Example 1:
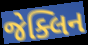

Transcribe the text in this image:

જેક્લિન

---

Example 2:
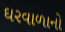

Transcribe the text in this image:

ઘરવાળાનો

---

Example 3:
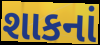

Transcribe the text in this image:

શાકનાં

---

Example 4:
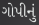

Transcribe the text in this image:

ગોપીનું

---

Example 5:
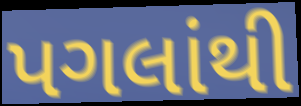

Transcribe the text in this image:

પગલાંથી